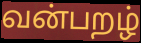
வன்பறழ்